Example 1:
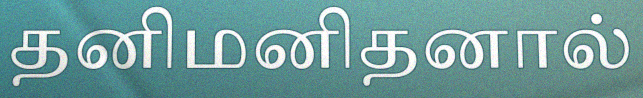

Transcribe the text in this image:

தனிமனிதனால்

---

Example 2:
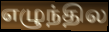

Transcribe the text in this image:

எழுந்தில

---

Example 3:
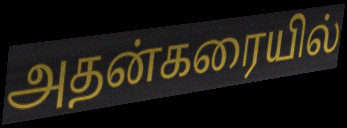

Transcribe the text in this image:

அதன்கரையில்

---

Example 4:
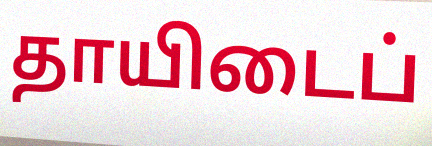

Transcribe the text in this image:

தாயிடைப்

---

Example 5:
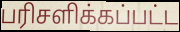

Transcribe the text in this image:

பரிசளிக்கப்பட்ட